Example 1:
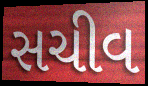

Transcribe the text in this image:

સચીવ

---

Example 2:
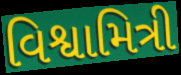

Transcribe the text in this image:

વિશ્વામિત્રી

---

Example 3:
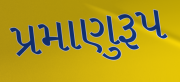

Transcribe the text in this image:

પ્રમાણુરૂપ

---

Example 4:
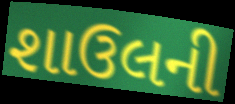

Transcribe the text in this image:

શાઉલની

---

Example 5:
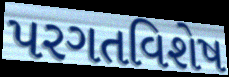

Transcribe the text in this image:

પરગતવિશેષ